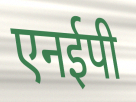
एनईपी